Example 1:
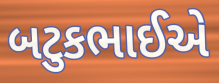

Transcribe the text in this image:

બટુકભાઈએ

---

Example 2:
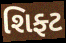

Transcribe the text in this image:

શિફ્ટ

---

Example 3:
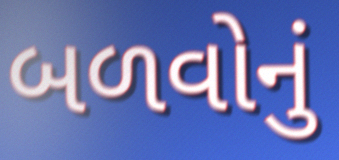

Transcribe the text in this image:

બળવોનું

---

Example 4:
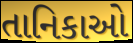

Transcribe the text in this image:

તાનિકાઓ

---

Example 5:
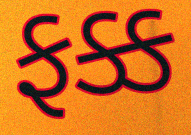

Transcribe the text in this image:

ફક્ક